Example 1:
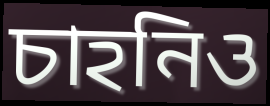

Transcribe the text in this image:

চাহনিও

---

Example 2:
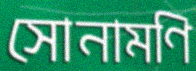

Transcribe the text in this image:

সোনামণি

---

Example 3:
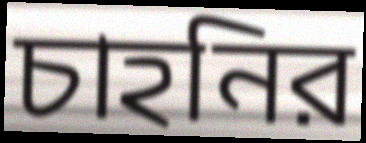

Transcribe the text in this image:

চাহনির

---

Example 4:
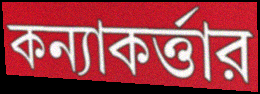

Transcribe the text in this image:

কন্যাকর্ত্তার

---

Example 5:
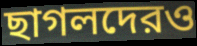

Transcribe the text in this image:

ছাগলদেরও